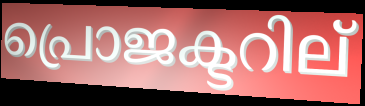
പ്രൊജക്ടറില്